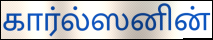
கார்ல்ஸனின்